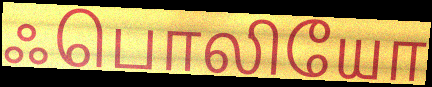
ஃபொலியோ